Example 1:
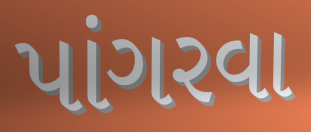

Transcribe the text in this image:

પાંગરવા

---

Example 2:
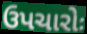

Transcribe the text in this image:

ઉપચારોઃ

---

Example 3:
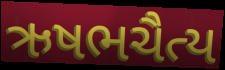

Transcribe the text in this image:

ઋષભચૈત્ય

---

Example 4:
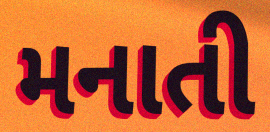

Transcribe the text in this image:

મનાતી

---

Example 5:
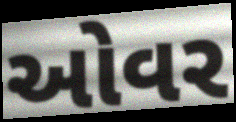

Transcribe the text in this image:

ઓવર